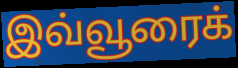
இவ்வூரைக்